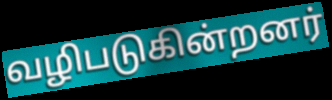
வழிபடுகின்றனர்